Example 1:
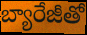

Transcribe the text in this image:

బ్యారేజీతో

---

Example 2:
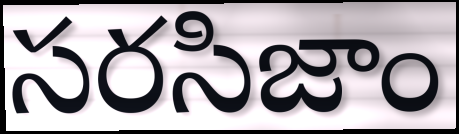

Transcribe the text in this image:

సరసిజాం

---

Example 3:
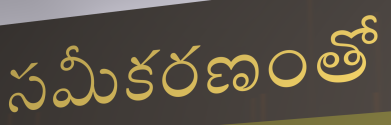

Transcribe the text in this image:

సమీకరణంతో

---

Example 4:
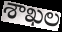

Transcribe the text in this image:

శాఖల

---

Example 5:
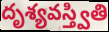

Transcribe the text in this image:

దృశ్యవస్త్వితి